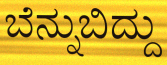
ಬೆನ್ನುಬಿದ್ದು